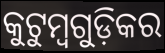
କୁଟୁମ୍ବଗୁଡ଼ିକର